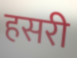
हसरी